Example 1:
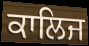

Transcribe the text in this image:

ਕਾਲਿਜ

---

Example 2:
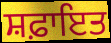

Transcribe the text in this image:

ਸ਼ਫ਼ਾਇਤ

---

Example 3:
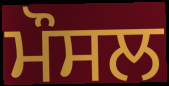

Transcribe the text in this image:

ਮੌਸਲ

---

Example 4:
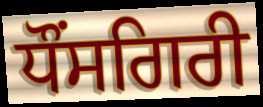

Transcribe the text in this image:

ਧੌਂਸਗਿਰੀ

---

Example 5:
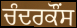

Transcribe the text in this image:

ਚੰਦਰਕੌਂਸ